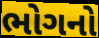
ભોગનો